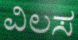
ವಿಲಸ